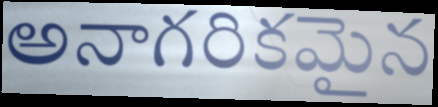
అనాగరికమైన